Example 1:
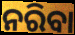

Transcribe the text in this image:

ନରିବା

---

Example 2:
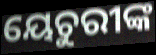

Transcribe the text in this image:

ୟେଚୁରୀଙ୍କ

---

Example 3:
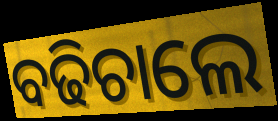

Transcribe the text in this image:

ବଢିଚାଲେ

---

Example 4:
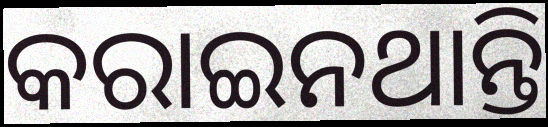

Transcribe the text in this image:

କରାଇନଥାନ୍ତି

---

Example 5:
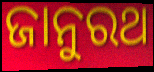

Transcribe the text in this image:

ଜାନୁରଥ